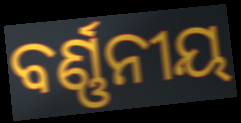
ବର୍ଣ୍ଣନୀୟ